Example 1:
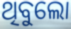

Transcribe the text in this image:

ଥିବୁଲୋ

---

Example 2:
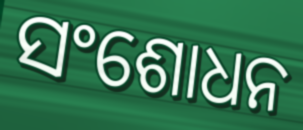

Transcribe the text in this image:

ସଂଶୋଧନ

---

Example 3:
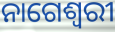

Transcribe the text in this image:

ନାଗେଶ୍ୱରୀ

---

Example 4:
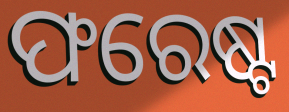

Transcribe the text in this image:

ଫରେଷ୍ଟ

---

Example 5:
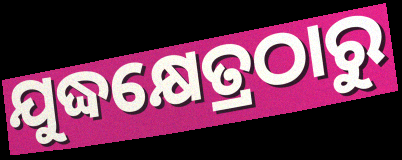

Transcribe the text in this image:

ଯୁଦ୍ଧକ୍ଷେତ୍ରଠାରୁ